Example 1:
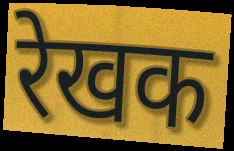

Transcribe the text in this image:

रेखक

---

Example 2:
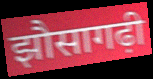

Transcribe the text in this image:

झौसागढ़ी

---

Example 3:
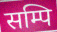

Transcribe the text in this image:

सम्पि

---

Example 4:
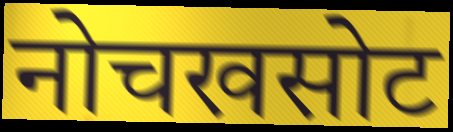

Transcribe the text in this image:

नोचखसोट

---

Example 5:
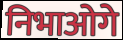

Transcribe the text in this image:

निभाओगे